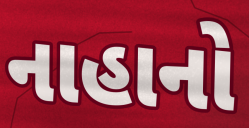
નાહાનો